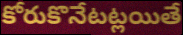
కోరుకొనేటట్లయితే